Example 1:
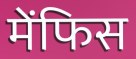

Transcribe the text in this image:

मेंफिस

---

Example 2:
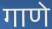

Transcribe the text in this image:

गाणे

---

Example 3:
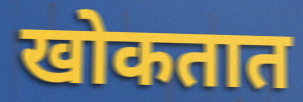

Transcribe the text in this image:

खोकतात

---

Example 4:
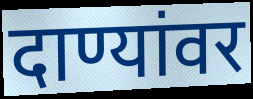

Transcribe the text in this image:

दाण्यांवर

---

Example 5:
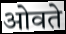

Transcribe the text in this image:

ओवते